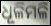
ଧୂଳିମଳି